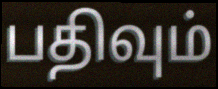
பதிவும்